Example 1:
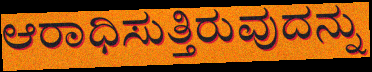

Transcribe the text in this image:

ಆರಾಧಿಸುತ್ತಿರುವುದನ್ನು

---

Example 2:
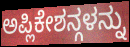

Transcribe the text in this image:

ಅಪ್ಲಿಕೇಶನ್ಗಳನ್ನು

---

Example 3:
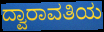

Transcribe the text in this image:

ದ್ವಾರಾವತಿಯ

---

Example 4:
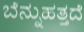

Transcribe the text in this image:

ಬೆನ್ನುಹತ್ತದೆ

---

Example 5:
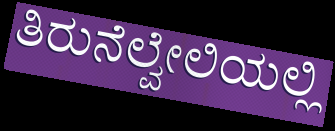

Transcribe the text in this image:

ತಿರುನೆಲ್ವೇಲಿಯಲ್ಲಿ